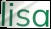
lisa